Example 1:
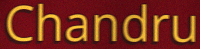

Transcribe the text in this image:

Chandru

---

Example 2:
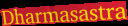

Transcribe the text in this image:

Dharmasastra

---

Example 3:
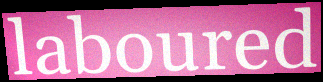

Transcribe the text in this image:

laboured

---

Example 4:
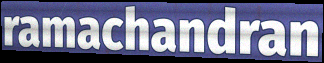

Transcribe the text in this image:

ramachandran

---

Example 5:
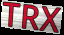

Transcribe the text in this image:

TRX